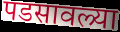
पडसावल्या